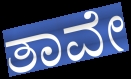
ತಾವೇ